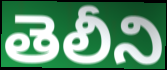
తెలీని